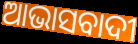
ଆଭାସବାଦୀ